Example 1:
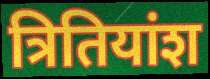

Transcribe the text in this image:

त्रितियांश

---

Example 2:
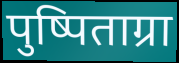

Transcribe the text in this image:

पुष्पिताग्रा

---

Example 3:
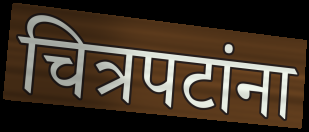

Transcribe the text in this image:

चित्रपटांना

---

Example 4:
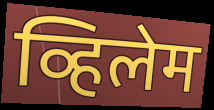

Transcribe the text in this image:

व्हिलेम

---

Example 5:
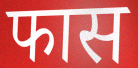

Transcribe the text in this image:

फास